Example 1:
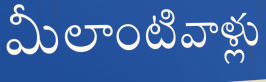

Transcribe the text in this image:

మీలాంటివాళ్లు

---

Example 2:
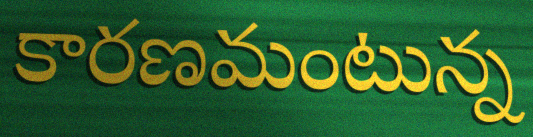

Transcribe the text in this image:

కారణమంటున్న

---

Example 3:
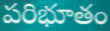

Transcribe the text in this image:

పరిభూతం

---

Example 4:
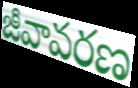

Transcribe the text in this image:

జీవావరణ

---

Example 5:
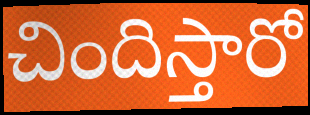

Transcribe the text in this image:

చిందిస్తారో